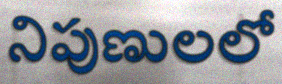
నిపుణులలో